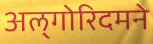
अल्गोरिदमने